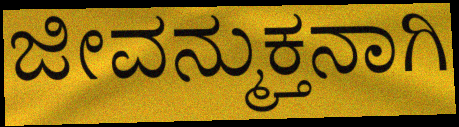
ಜೀವನ್ಮುಕ್ತನಾಗಿ